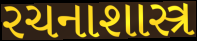
રચનાશાસ્ત્ર